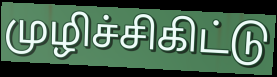
முழிச்சிகிட்டு